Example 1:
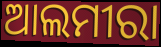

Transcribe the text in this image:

ଆଲମୀରା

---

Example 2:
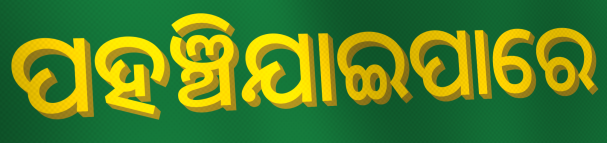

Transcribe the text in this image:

ପହଞ୍ଚିଯାଇପାରେ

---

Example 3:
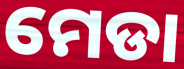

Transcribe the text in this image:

ମେଡା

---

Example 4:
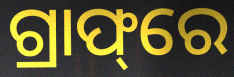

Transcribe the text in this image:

ଗ୍ରାଫ୍‌ରେ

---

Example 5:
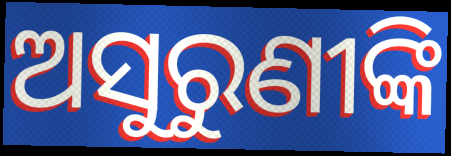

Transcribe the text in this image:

ଅସୁରୁଣୀଙ୍କି